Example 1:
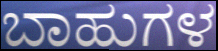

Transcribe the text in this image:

ಬಾಹುಗಳ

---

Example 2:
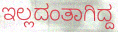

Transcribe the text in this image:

ಇಲ್ಲದಂತಾಗಿದ್ದ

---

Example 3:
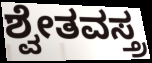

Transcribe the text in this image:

ಶ್ವೇತವಸ್ತ್ರ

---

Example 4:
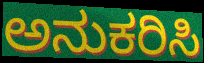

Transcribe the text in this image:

ಅನುಕರಿಸಿ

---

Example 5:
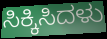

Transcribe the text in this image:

ಸಿಕ್ಕಿಸಿದಳು